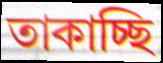
তাকাচ্ছি